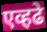
एव्हढे